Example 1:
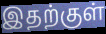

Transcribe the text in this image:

இதற்குள்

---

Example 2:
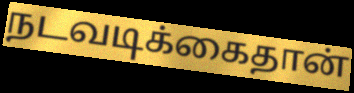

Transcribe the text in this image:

நடவடிக்கைதான்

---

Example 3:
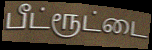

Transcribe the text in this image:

பீட்ரூட்டை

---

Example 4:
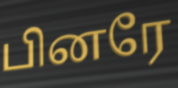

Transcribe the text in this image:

பினரே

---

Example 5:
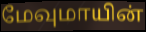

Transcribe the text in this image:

மேவுமாயின்